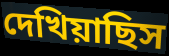
দেখিয়াছিস